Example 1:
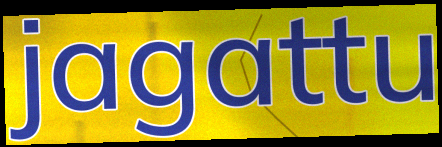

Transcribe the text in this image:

jagattu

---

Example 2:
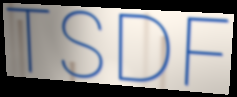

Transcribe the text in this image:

TSDF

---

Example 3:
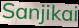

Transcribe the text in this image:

Sanjikai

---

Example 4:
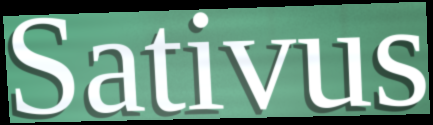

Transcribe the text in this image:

Sativus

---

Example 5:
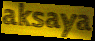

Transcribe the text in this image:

aksaya